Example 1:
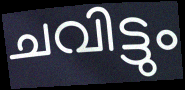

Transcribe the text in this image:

ചവിട്ടും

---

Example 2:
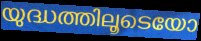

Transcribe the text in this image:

യുദ്ധത്തിലൂടെയോ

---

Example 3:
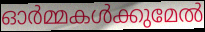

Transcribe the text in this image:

ഓർമ്മകൾക്കുമേൽ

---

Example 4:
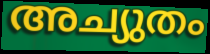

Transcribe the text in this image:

അച്യുതം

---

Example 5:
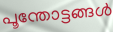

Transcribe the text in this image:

പൂന്തോട്ടങ്ങൾ